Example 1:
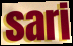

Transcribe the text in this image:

sari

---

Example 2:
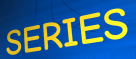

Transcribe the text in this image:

SERIES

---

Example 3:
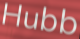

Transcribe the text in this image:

Hubb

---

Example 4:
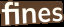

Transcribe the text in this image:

fines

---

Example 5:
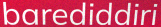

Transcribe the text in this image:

barediddiri